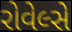
રોવેલ્સે